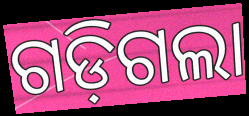
ଗଡ଼ିଗଲା